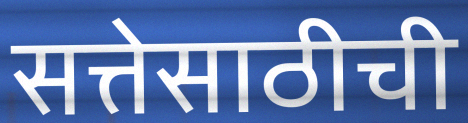
सत्तेसाठीची